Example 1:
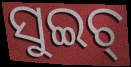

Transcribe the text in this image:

ସୁଇଚ୍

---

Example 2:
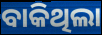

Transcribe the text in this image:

ବାକିଥିଲା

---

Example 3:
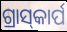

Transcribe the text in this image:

ଗ୍ରାସ୍‌କାର୍ପ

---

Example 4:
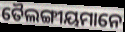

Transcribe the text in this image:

ତୈଲଙ୍ଗୀୟମାନେ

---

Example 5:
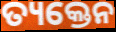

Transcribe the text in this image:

ତ୍ୟକ୍ତେନ